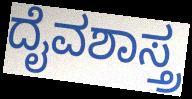
ದೈವಶಾಸ್ತ್ರ